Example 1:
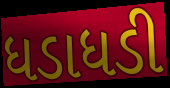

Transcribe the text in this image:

ધડાધડી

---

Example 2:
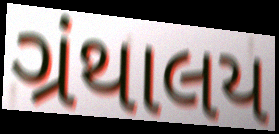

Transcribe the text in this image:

ગ્રંથાલય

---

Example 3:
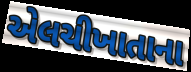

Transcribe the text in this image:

એલચીખાતાના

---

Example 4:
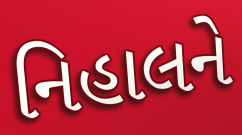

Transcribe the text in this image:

નિહાલને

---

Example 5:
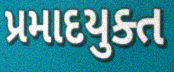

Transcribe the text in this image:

પ્રમાદયુક્ત